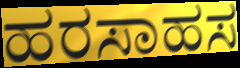
ಹರಸಾಹಸ